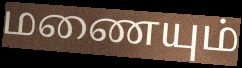
மணையும்